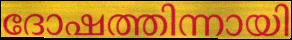
ദോഷത്തിന്നായി